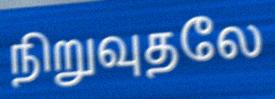
நிறுவுதலே